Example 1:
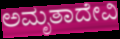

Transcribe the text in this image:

ಅಮೃತಾದೇವಿ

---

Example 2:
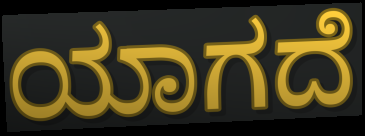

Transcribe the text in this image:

ಯಾಗದೆ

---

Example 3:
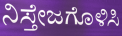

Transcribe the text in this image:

ನಿಸ್ತೇಜಗೊಳಿಸಿ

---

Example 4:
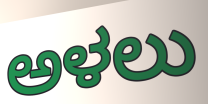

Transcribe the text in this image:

ಅಳಲು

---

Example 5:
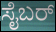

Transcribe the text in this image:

ಸೈಬರ್